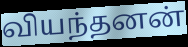
வியந்தனன்